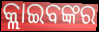
କ୍ଲାଇବଙ୍କର